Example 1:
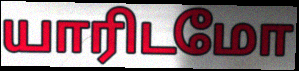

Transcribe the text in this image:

யாரிடமோ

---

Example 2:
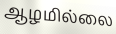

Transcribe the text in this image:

ஆழமில்லை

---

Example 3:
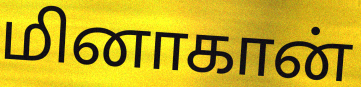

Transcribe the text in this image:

மினாகான்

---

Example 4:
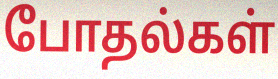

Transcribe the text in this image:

போதல்கள்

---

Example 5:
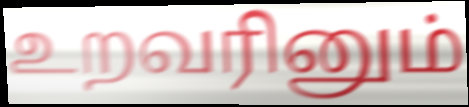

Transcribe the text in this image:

உறவரினும்